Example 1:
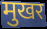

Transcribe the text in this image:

मुखर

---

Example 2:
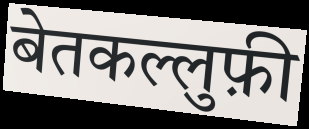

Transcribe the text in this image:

बेतकल्लुफ़ी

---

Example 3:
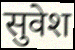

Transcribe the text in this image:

सुवेश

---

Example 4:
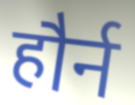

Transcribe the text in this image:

हौर्न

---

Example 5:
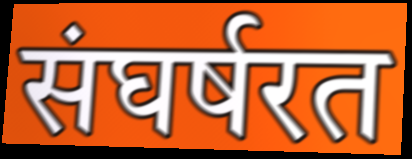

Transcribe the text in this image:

संघर्षरत